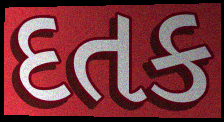
દતક